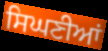
ਸਿਘਣੀਆਂ